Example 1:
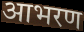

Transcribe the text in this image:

आभरण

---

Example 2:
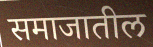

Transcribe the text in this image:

समाजातील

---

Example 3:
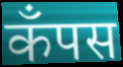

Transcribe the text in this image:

कॅंपस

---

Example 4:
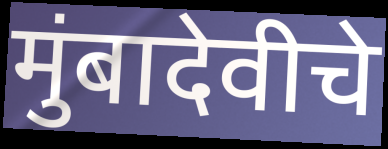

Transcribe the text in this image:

मुंबादेवीचे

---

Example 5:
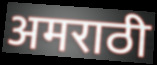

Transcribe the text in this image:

अमराठी